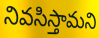
నివసిస్తామని